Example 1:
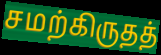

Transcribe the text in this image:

சமற்கிருதத்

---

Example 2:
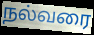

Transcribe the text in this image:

நல்வரை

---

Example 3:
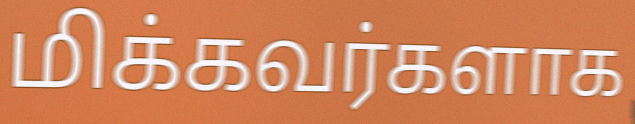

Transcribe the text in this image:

மிக்கவர்களாக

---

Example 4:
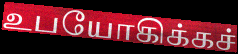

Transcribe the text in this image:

உபயோகிக்கச்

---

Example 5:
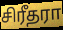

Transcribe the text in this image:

சிரீதரா